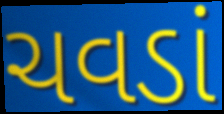
ચવડાં